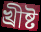
খ্ৰীষ্ট